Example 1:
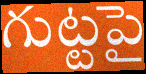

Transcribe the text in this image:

గుట్టపై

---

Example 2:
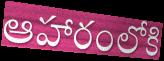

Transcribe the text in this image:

ఆహారంలోకి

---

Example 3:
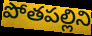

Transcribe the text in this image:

పోతపల్లిని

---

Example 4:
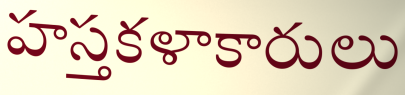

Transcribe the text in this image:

హస్తకళాకారులు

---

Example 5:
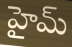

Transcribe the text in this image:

హైమ్